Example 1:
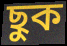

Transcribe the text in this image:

ছুক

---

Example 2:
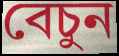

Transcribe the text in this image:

বেচুন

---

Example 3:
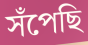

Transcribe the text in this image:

সঁপেছি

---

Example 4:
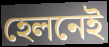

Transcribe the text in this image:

হেলনেই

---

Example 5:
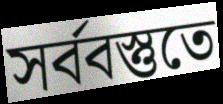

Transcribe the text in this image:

সর্ববস্তুতে